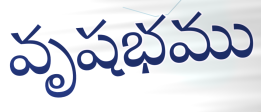
వృషభము